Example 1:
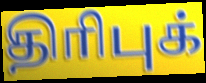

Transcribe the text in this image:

திரிபுக்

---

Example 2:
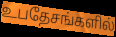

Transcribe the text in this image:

உபதேசங்களில்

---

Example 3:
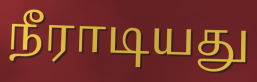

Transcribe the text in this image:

நீராடியது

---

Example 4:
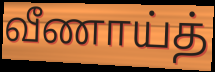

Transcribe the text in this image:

வீணாய்த்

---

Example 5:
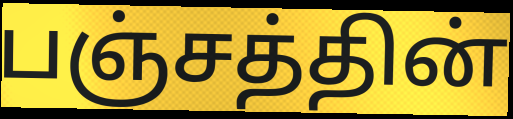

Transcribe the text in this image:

பஞ்சத்தின்